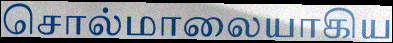
சொல்மாலையாகிய